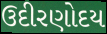
ઉદીરણોદય